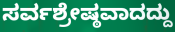
ಸರ್ವಶ್ರೇಷ್ಠವಾದದ್ದು